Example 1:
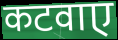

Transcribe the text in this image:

कटवाए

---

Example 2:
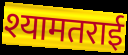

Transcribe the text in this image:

श्यामतराई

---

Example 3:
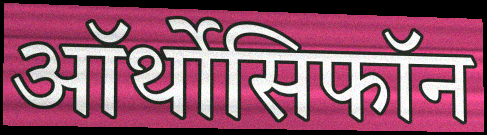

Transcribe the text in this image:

ऑर्थोसिफॉन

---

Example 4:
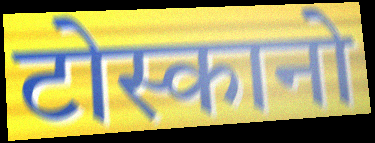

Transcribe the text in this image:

टोस्कानो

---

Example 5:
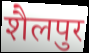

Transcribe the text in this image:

शैलपुर